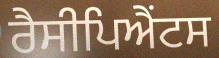
ਰੈਸੀਪਿਐਂਟਸ